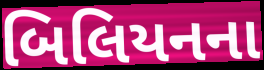
બિલિયનના